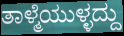
ತಾಳ್ಮೆಯುಳ್ಳದ್ದು